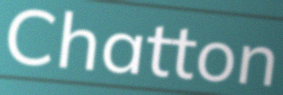
Chatton